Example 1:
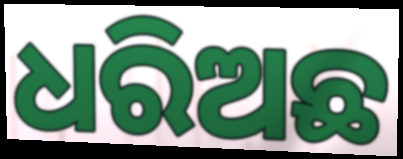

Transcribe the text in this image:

ଧରିଅଛ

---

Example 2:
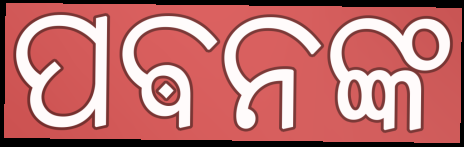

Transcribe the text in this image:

ପଵନଙ୍କ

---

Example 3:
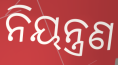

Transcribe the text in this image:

ନିୟନ୍ତ୍ରଣ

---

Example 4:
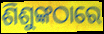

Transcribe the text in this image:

ଶିଶୁଙ୍କଠାରେ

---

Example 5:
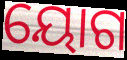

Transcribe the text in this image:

ୟୋଗ